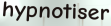
hypnotiser